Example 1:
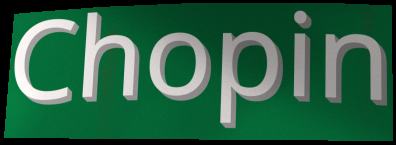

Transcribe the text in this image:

Chopin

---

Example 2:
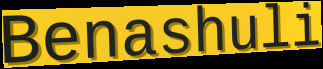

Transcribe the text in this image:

Benashuli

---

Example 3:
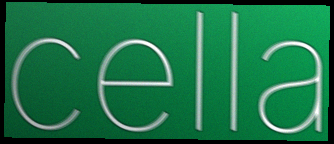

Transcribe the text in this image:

cella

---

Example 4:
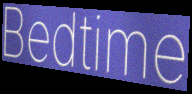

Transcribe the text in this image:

Bedtime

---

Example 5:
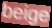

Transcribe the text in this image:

beige